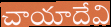
చాయాదేవి